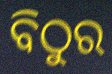
ବିଠୁର